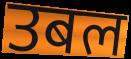
उबल